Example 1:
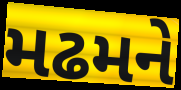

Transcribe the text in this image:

મઢમને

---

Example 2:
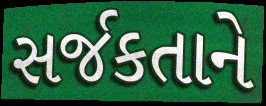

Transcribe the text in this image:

સર્જકતાને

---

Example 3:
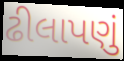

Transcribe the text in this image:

ઢીલાપણું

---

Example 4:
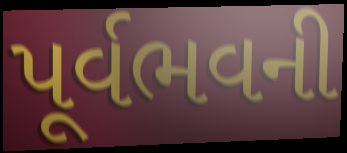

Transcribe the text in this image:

પૂર્વભવની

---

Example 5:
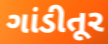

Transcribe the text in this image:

ગાંડીતૂર